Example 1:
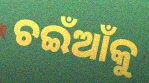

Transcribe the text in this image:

ଚଇଁଆଁକୁ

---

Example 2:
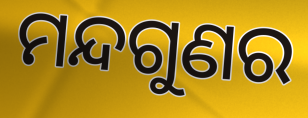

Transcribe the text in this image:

ମନ୍ଦଗୁଣର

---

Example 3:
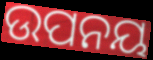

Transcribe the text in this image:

ଉପନୟ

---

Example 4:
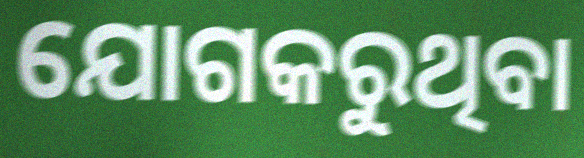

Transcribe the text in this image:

ଯୋଗକରୁଥିବା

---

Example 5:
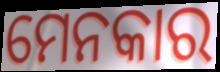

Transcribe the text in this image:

ମେନକାର